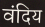
वंदिय